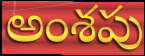
అంశపు